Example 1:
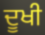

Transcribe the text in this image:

ਦੂਖੀ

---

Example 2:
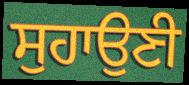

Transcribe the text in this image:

ਸੁਹਾਉਣੀ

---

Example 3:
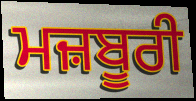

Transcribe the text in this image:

ਮਜ਼ਬੂਰੀ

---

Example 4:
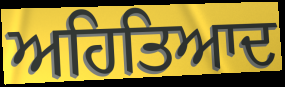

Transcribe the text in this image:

ਅਹਿਤਿਆਦ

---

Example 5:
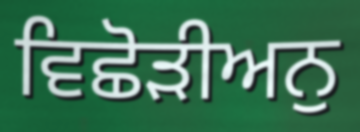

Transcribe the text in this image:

ਵਿਛੋੜੀਅਨੁ